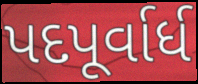
પદપૂર્વાર્ધ